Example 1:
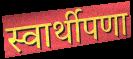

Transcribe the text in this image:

स्वार्थीपणा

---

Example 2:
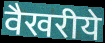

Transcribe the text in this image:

वैखरीये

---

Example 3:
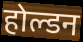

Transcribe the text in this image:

होल्डन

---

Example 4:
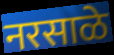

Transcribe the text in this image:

नरसाळे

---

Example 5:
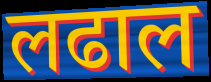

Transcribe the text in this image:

लढाल